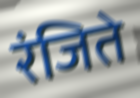
रंजिते